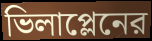
ভিলাপ্লেনের